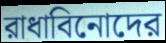
রাধাবিনোদের